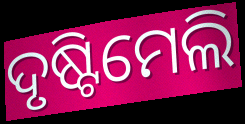
ଦୃଷ୍ଟିମେଲି